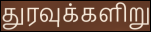
துரவுக்களிறு